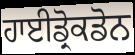
ਹਾਈਡ੍ਰੋਕਡੋਨ